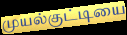
முயல்குட்டியை